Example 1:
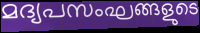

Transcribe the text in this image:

മദ്യപസംഘങ്ങളുടെ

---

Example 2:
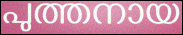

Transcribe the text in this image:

പുത്തനായ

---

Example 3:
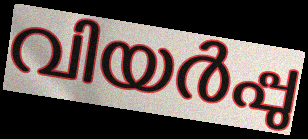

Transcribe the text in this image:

വിയർപ്പു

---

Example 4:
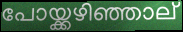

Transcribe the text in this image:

പോയ്ക്കഴിഞ്ഞാല്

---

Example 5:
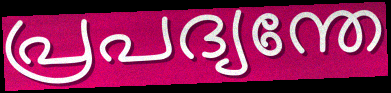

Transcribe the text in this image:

പ്രപദ്യന്തേ